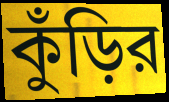
কুঁড়ির